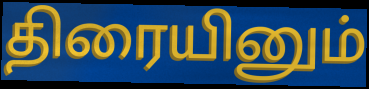
திரையினும்